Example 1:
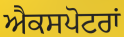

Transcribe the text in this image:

ਐਕਸਪੋਟਰਾਂ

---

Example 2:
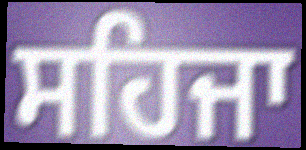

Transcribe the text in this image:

ਸਹਿਜਾ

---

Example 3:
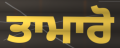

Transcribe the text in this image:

ਤਾਮਾਰੋ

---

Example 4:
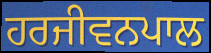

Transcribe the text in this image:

ਹਰਜੀਵਨਪਾਲ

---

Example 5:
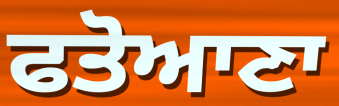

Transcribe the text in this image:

ਫਤੋਆਣਾ